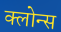
क्लोन्स